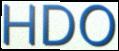
HDO